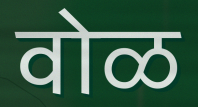
वोळ